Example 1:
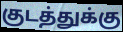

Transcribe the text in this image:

குடத்துக்கு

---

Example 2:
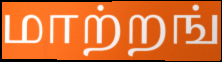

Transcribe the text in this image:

மாற்றங்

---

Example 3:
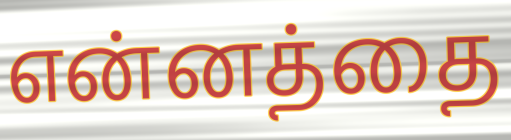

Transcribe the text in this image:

என்னத்தை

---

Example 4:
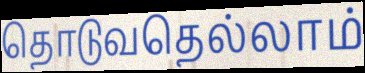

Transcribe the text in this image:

தொடுவதெல்லாம்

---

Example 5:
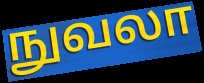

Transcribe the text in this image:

நுவலா